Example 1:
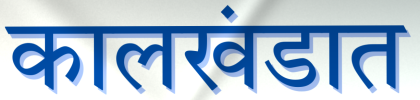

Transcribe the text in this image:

कालखंडात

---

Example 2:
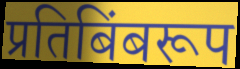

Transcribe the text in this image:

प्रतिबिंबरूप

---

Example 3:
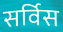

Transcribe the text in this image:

सर्विस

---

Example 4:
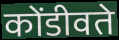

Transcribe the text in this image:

कोंडीवते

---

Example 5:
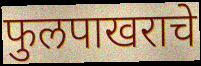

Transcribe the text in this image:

फुलपाखराचे